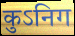
कुऽनिग